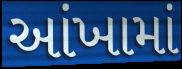
આંખામાં